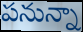
పనున్నా